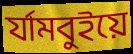
র্যামবুইয়ে